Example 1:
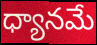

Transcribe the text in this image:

ధ్యానమే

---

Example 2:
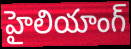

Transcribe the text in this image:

హైలియాంగ్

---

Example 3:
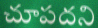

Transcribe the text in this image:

చూపదని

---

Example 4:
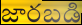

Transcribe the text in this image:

జారబడి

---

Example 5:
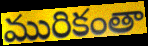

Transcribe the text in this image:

మురికంతా